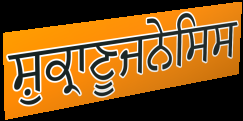
ਸ਼ੁਕ੍ਰਾਣੂਜਨੇਸਿਸ